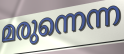
മരുന്നെന്ന